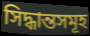
সিদ্ধান্তসমূহ